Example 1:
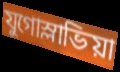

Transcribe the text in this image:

যুগোস্লাভিয়া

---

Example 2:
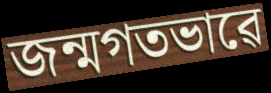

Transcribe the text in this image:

জন্মগতভাৱে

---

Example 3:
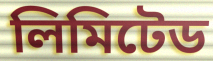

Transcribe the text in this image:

লিমিটেড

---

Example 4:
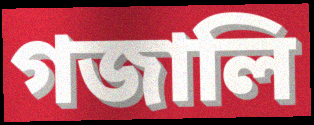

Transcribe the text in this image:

গজালি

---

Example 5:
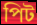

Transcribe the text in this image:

পিট